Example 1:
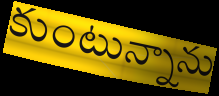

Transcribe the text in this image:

కుంటున్నాను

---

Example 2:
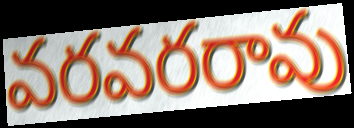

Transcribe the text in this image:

వరవరరావు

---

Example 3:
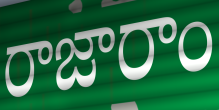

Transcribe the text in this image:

రాజారాం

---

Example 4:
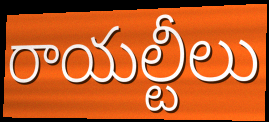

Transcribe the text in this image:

రాయల్టీలు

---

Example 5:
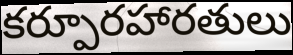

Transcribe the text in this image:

కర్పూరహారతులు